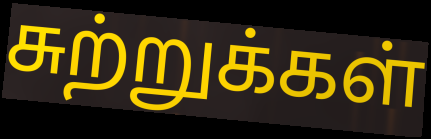
சுற்றுக்கள்